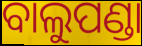
ବାଲୁପଣ୍ଡା